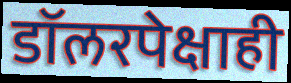
डॉलरपेक्षाही